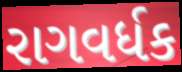
રાગવર્ધક